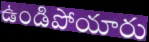
ఉండిపోయారు